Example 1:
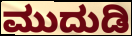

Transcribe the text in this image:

ಮುದುಡಿ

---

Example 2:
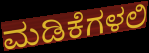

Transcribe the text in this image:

ಮಡಿಕೆಗಳಲಿ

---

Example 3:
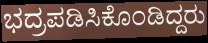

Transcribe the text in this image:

ಭದ್ರಪಡಿಸಿಕೊಂಡಿದ್ದರು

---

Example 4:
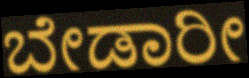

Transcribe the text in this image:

ಬೇಡಾರೀ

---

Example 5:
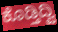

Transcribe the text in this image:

ಕೊಡ್ತಿದ್ವಿ